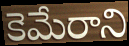
కెమేరాని